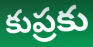
కుప్రకు